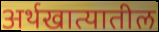
अर्थखात्यातील